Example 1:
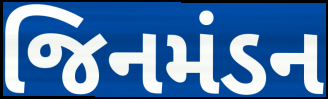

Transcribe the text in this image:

જિનમંડન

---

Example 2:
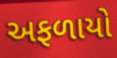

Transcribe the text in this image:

અફળાયો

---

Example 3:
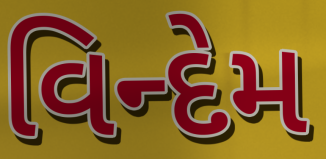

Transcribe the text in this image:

વિન્દેમ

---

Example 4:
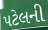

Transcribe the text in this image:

પટેલની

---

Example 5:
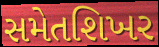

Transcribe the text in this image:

સમેતશિખર